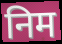
निम